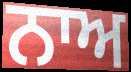
ਨਾਅ